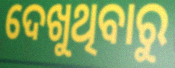
ଦେଖୁଥିବାରୁ